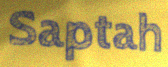
Saptah